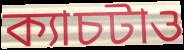
ক্যাচটাও